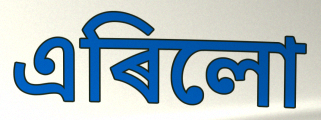
এৰিলো